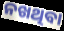
ନଖଥିବା